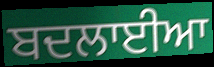
ਬਦਲਾਈਆ